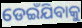
ଡେଇଁଯିବାକୁ